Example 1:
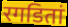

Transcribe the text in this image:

रगडितां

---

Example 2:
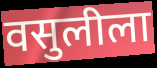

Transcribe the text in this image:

वसुलीला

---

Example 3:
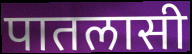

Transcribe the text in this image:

पातलासी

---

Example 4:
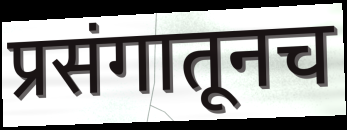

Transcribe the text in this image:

प्रसंगातूनच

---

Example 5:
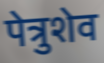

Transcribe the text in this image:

पेत्रुशेव